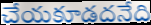
చేయకూడదనేది